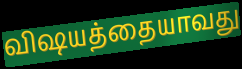
விஷயத்தையாவது